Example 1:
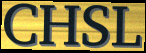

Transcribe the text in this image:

CHSL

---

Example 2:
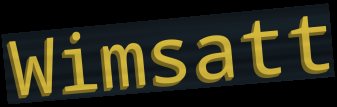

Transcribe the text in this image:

Wimsatt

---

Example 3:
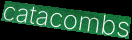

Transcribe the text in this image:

catacombs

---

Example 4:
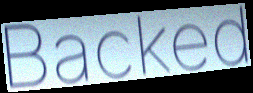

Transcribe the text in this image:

Backed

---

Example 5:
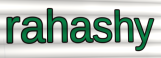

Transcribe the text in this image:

rahashy